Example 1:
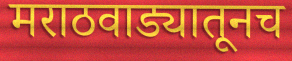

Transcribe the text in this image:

मराठवाड्यातूनच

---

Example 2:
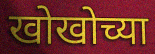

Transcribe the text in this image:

खोखोच्या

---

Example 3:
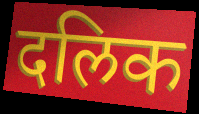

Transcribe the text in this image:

दलिक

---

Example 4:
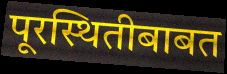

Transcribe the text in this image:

पूरस्थितीबाबत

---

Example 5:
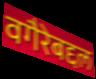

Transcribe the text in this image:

वगैरेबद्दल